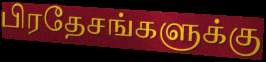
பிரதேசங்களுக்கு